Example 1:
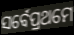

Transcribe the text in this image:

ସର୍ବେପ୍ରଥମେ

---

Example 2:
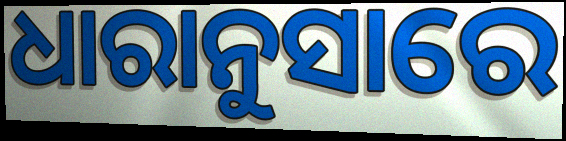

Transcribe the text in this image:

ଧାରାନୁସାରେ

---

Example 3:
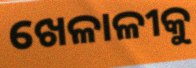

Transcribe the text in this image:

ଖେଳାଳୀକୁ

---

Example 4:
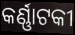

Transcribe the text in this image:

କର୍ଣ୍ଣାଟକୀ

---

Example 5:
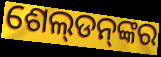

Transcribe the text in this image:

ଶେଲ୍‌ଡନ୍‌ଙ୍କର